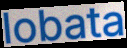
lobata